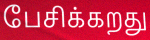
பேசிக்கறது